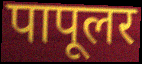
पापूलर